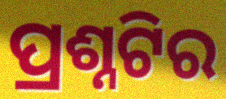
ପ୍ରଶ୍ନଟିର